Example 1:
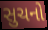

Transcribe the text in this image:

સુચનો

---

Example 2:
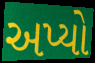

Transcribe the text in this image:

અપ્યો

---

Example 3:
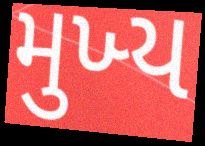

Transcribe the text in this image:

મુખ્‍ય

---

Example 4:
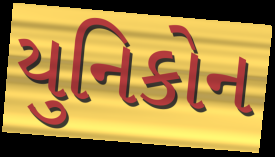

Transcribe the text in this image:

યુનિકોન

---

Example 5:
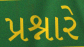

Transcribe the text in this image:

પ્રશ્નારે